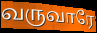
வருவாரே